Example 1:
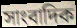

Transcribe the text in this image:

সাংবাদিক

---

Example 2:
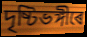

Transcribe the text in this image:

দৃষ্টিভঙ্গীৰে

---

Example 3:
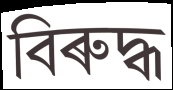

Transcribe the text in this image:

বিৰুদ্ধ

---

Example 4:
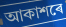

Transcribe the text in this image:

আকাশৰে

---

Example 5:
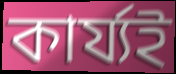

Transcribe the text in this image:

কাৰ্য্যই